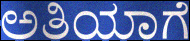
ಅತಿಯಾಗೆ